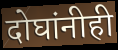
दोघांनीही